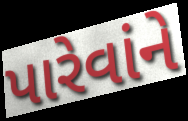
પારેવાંને